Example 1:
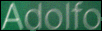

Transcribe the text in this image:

Adolfo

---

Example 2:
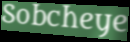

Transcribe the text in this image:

Sobcheye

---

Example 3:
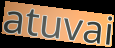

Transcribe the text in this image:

atuvai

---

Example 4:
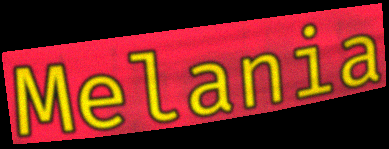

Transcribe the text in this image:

Melania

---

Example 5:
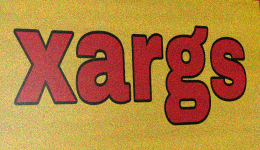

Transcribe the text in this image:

xargs